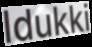
Idukki